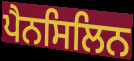
ਪੈਨਸਿਲਿਨ